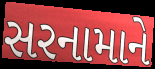
સરનામાને